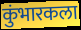
कुंभारकला